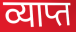
व्‍याप्‍त